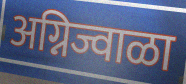
अग्निज्वाळा